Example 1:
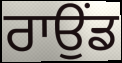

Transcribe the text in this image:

ਰਾਉਂਡ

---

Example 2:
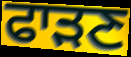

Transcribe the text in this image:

ਫਾੜਣ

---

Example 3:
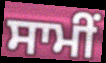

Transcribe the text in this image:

ਸਾਮੀਂ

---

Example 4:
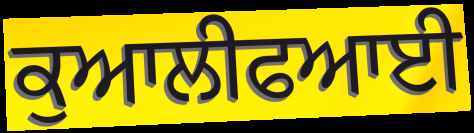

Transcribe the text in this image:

ਕੁਆਲੀਫਆਈ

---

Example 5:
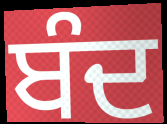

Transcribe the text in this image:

ਬੰਦ